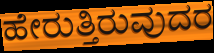
ಹೇರುತ್ತಿರುವುದರ